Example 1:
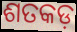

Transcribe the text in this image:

ଶତକଡ଼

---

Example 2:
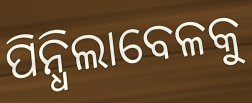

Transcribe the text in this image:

ପିନ୍ଧିଲାବେଳକୁ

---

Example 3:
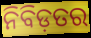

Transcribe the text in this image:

ନିବିଡ଼ତର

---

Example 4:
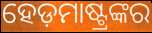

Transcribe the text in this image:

ହେଡ଼ମାଷ୍ଟ୍ରଙ୍କର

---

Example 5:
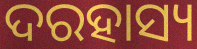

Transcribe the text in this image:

ଦରହାସ୍ୟ